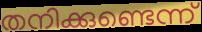
തനിക്കുണ്ടെന്ന്